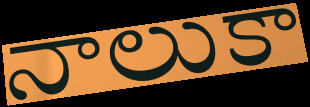
నాలుకా